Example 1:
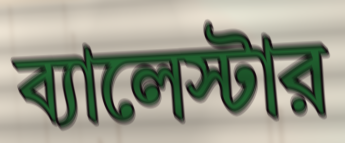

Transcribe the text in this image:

ব্যালেস্টার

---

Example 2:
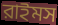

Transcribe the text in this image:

রাইমস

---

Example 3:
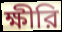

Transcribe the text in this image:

ক্ষীরি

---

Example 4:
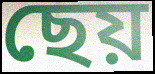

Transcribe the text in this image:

ছেয়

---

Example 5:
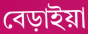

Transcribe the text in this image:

বেড়াইয়া